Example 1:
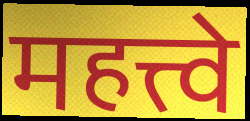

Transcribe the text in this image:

महत्त्वे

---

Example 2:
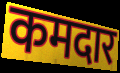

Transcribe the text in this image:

कमदार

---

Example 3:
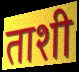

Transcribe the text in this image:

ताशी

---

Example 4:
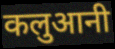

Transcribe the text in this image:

कलुआनी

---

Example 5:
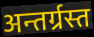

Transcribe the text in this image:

अन्तर्ग्रस्त